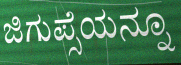
ಜಿಗುಪ್ಸೆಯನ್ನೂ